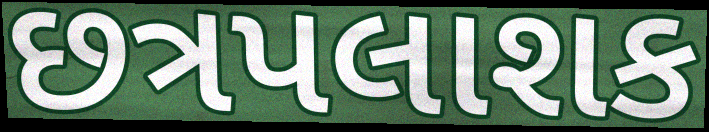
છત્રપલાશક